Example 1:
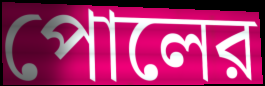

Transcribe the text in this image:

পোলের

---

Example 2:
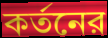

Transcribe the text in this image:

কর্তনের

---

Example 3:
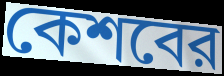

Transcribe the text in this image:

কেশবের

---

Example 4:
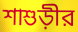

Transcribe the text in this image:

শাশুড়ীর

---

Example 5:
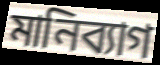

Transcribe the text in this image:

মানিব্যাগ